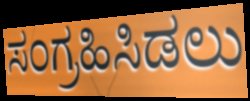
ಸಂಗ್ರಹಿಸಿಡಲು